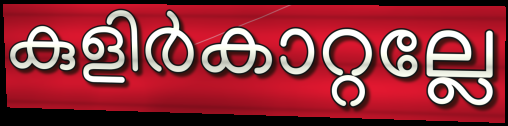
കുളിർകാറ്റല്ലേ